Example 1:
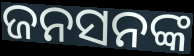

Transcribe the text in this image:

ଜନସନଙ୍କ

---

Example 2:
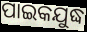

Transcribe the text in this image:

ପାଇକଯୁଦ୍ଧ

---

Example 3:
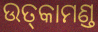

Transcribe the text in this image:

ଉତ୍‌କାମଣ୍ଡ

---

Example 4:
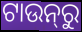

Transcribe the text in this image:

ଟାଉନ୍‌ରୁ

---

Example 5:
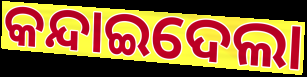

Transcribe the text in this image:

କନ୍ଦାଇଦେଲା